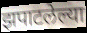
झपाटलेल्या